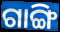
ଗାଙ୍ଗି